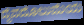
ದೈವದೊಲುಮೆಯ